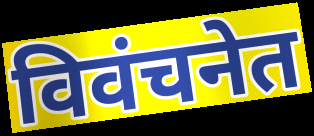
विवंचनेत